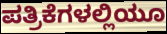
ಪತ್ರಿಕೆಗಳಲ್ಲಿಯೂ